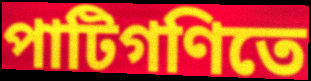
পাটিগণিতে